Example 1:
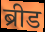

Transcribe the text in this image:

ब्रीड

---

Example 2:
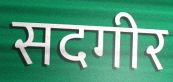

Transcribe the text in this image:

सदगीर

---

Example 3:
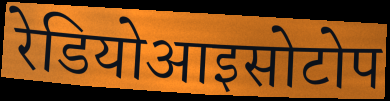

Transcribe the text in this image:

रेडियोआइसोटोप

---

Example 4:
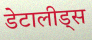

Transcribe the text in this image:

डेटालीड्स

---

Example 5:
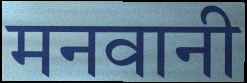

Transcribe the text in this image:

मनवानी